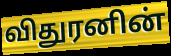
விதுரனின்